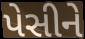
પેસીને